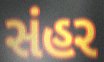
સંહર